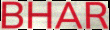
BHAR